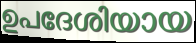
ഉപദേശിയായ